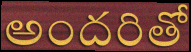
అందరితో